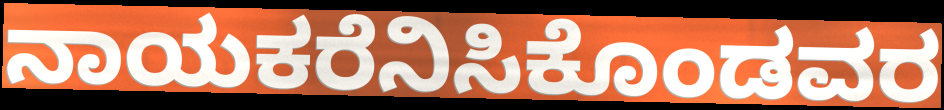
ನಾಯಕರೆನಿಸಿಕೊಂಡವರ